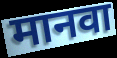
मानवा